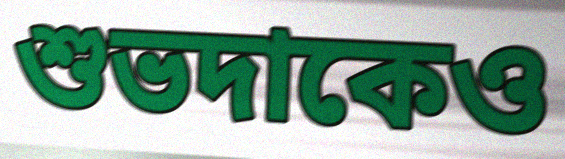
শুভদাকেও